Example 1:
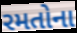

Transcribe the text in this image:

રમતોના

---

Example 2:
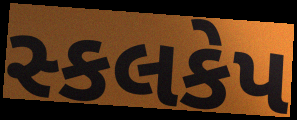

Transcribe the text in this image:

સ્કલકેપ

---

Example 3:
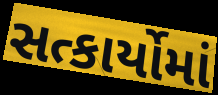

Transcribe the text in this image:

સત્કાર્યોમાં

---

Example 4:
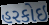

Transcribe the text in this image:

હરકોઇ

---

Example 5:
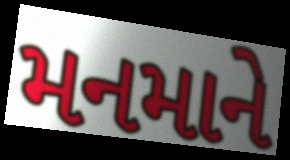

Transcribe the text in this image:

મનમાને